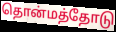
தொன்மத்தோடு